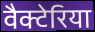
वैक्टेरिया